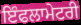
ਇੰਫਲਾਮੇਟਰੀ